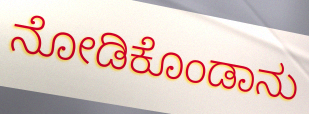
ನೋಡಿಕೊಂಡಾನು